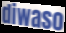
diwaso